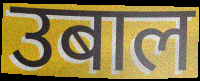
उबाल